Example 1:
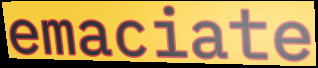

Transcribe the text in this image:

emaciate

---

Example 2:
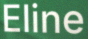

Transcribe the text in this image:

Eline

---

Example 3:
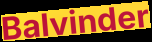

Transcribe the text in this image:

Balvinder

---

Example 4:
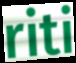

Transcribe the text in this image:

riti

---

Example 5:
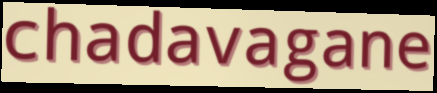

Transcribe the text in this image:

chadavagane